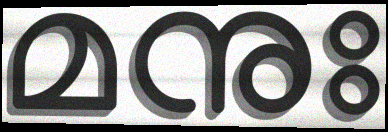
മനുഃ